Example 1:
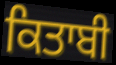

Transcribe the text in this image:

ਕਿਤਾਬੀ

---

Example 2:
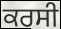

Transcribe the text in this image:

ਕਰਸੀ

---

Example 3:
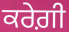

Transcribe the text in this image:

ਕਰੇਗ਼ੀ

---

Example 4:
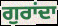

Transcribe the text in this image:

ਗੁਰਾਂਦਾ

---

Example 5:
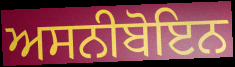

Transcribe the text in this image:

ਅਸਨੀਬੋਇਨ